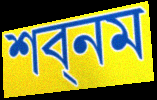
শব্নম